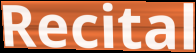
Recital